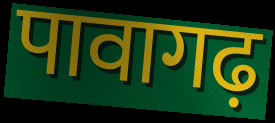
पावागढ़